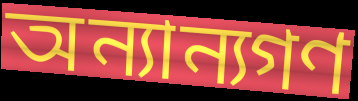
অন্যান্যগণ